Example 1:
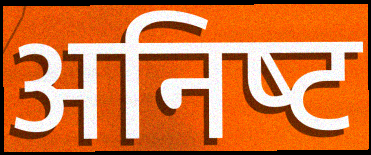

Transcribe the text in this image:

अनिष्‍ट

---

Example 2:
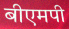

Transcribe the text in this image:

बीएमपी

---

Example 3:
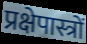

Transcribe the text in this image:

प्रक्षेपास्त्रों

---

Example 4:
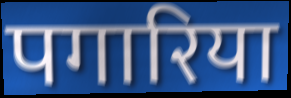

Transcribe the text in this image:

पगारिया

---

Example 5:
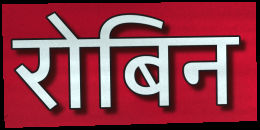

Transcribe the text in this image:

रोबिन